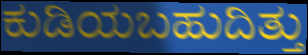
ಕುಡಿಯಬಹುದಿತ್ತು